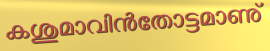
കശുമാവിൻതോട്ടമാണു്